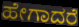
ಹೇಗಾದರೆ